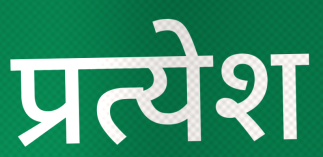
प्रत्येश